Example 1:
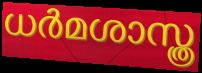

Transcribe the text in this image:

ധർമശാസ്ത്ര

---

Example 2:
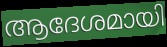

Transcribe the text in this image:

ആദേശമായി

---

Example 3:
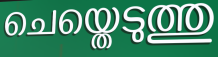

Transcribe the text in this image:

ചെയ്തെടുത്തു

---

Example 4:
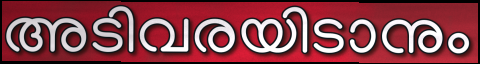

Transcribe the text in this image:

അടിവരയിടാനും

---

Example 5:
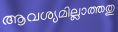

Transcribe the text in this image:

ആവശ്യമില്ലാത്തതു